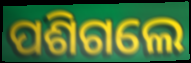
ପଶିଗଲେ